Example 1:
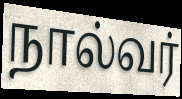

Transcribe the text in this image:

நால்வர்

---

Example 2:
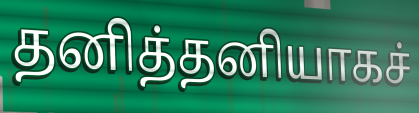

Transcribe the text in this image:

தனித்தனியாகச்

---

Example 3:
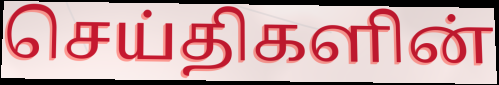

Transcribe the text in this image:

செய்திகளின்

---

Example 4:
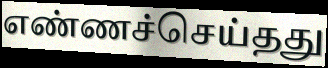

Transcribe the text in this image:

எண்ணச்செய்தது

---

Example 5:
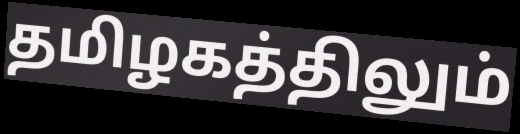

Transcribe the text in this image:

தமிழகத்திலும்